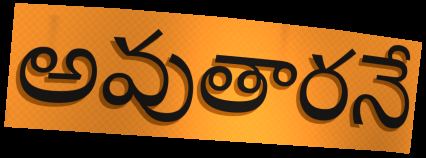
అవుతారనే